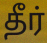
தீர்